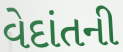
વેદાંતની